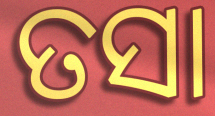
ତସା